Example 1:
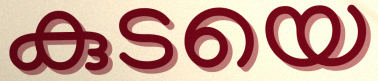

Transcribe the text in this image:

കുടയെ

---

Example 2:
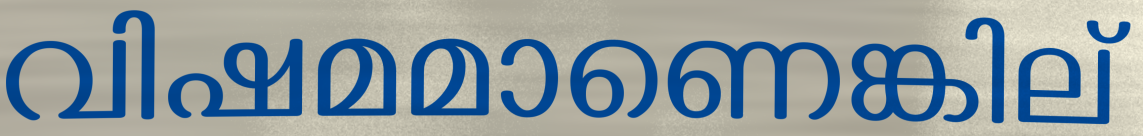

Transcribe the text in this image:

വിഷമമാണെങ്കില്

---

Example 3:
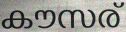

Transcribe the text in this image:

കൗസര്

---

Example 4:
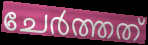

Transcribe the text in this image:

ചേർത്തത്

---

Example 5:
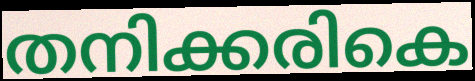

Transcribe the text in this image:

തനിക്കരികെ